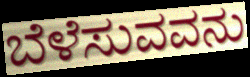
ಬೆಳೆಸುವವನು